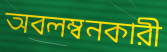
অবলম্বনকারী